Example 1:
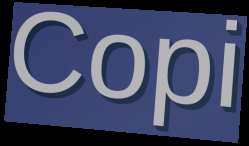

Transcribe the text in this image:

Copi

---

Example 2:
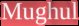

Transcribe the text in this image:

Mughul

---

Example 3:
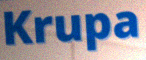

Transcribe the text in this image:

Krupa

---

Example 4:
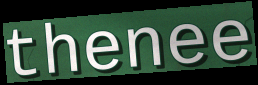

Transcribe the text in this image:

thenee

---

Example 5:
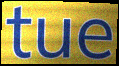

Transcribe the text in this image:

tue